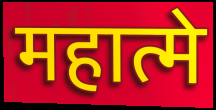
महात्मे